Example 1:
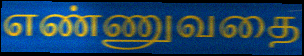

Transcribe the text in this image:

எண்ணுவதை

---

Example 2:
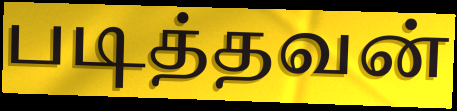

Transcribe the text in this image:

படித்தவன்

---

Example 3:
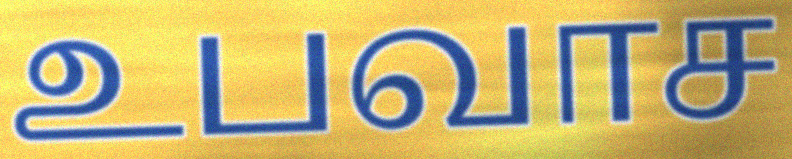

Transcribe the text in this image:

உபவாச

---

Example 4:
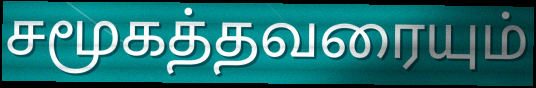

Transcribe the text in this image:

சமூகத்தவரையும்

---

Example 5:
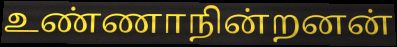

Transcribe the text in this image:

உண்ணாநின்றனன்